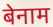
बेनाम